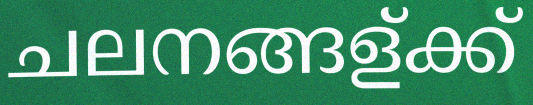
ചലനങ്ങള്ക്ക്